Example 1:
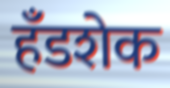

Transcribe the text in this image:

हँडशेक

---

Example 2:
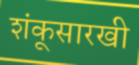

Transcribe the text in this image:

शंकूसारखी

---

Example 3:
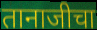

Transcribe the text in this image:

तानाजीचा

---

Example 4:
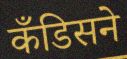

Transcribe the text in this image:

कँडिसने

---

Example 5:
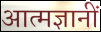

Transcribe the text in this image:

आत्मज्ञानीं